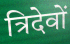
त्रिदेवों